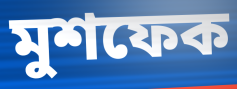
মুশফেক